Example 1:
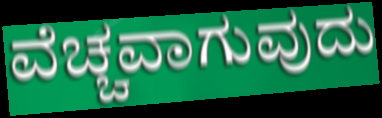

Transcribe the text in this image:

ವೆಚ್ಚವಾಗುವುದು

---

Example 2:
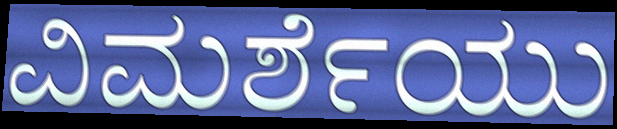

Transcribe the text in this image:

ವಿಮರ್ಶೆಯು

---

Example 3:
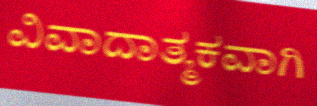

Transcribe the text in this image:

ವಿವಾದಾತ್ಮಕವಾಗಿ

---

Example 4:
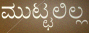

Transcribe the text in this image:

ಮುಟ್ಟಲಿಲ್ಲ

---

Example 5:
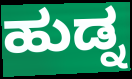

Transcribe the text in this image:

ಹುಡ್ನ